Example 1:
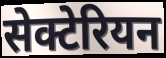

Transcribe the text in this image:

सेक्टेरियन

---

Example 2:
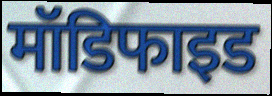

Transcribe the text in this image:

मॉडिफाइड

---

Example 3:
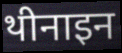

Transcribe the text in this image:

थीनाइन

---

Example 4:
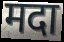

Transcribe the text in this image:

मदा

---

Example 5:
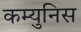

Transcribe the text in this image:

कम्युनिस